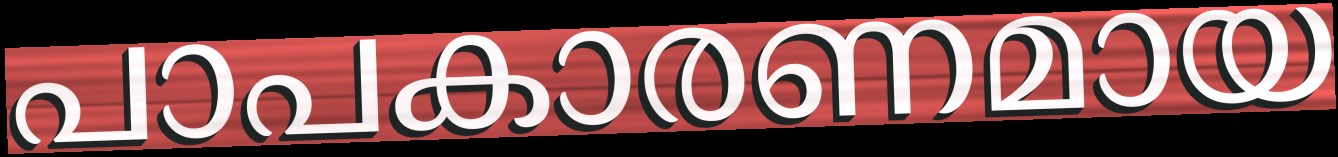
പാപകാരണമായ